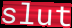
slut